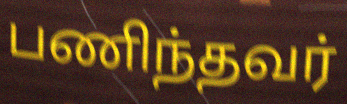
பணிந்தவர்